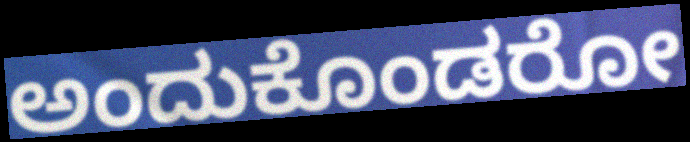
ಅಂದುಕೊಂಡರೋ